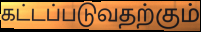
கட்டப்படுவதற்கும்